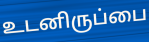
உடனிருப்பை